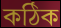
কঠিক